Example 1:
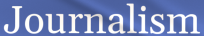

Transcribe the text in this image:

Journalism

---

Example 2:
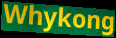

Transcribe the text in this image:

Whykong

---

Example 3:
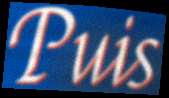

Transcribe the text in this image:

Puis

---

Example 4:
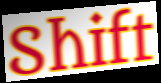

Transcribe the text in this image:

Shift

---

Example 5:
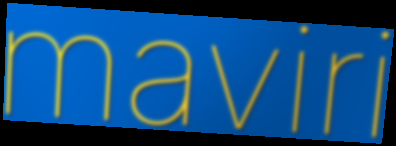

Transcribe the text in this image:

maviri